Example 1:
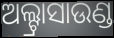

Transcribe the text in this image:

ଅଲ୍ଟ୍ରାସାଉଣ୍ଡ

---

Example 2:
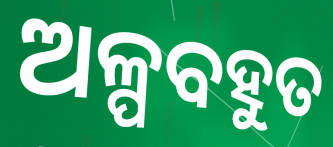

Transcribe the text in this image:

ଅଳ୍ପବହୁତ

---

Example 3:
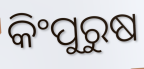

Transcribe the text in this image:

କିଂପୁରୁଷ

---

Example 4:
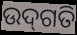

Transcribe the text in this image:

ଉଦ୍‌ଗତି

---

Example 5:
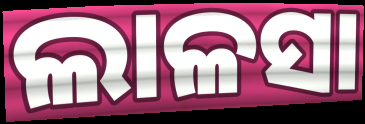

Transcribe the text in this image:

ଲାଳସା